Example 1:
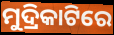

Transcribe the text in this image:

ମୁଦ୍ରିକାଟିରେ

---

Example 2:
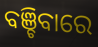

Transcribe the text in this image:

ବଞ୍ଚିବାରେ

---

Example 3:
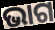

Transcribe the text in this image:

ଭାଗ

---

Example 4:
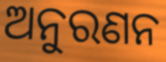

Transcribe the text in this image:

ଅନୁରଣନ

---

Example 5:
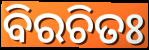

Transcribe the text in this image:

ବିରଚିତଃ